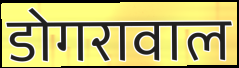
डोगरावाल